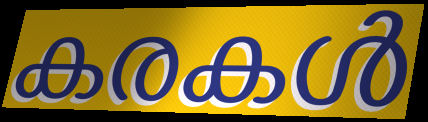
കരകൾ